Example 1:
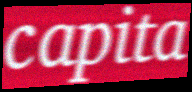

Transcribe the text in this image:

capita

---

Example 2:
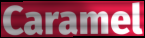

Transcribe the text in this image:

Caramel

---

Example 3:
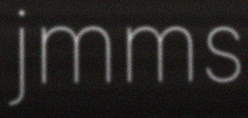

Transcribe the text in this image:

jmms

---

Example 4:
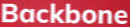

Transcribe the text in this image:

Backbone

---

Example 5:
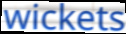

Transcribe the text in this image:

wickets